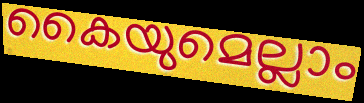
കൈയുമെല്ലാം